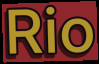
Rio